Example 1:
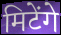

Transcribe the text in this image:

मिटेंगे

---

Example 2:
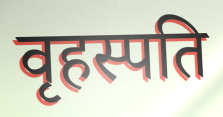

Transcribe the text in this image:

वृहस्पति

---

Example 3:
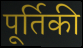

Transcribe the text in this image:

पूर्तिकी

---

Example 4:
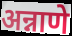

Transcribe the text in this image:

अन्नाणे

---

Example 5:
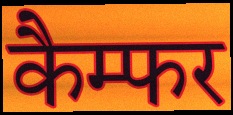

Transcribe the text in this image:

कैम्फर